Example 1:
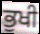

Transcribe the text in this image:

ਭੁਖੀ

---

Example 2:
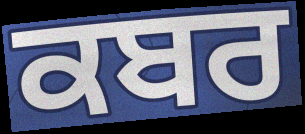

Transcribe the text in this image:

ਕਬਰ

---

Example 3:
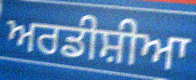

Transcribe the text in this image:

ਅਰਡੀਸ਼ੀਆ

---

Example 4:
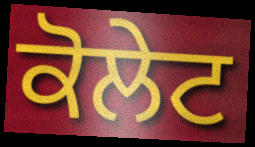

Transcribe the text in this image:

ਕੋਲੇਟ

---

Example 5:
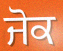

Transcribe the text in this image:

ਜੋਕ